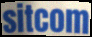
sitcom